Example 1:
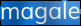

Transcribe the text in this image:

magale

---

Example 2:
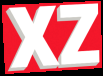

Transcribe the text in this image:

XZ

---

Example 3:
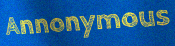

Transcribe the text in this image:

Annonymous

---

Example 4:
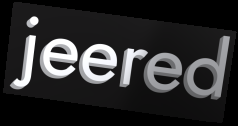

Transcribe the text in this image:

jeered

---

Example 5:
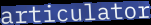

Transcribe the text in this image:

articulator